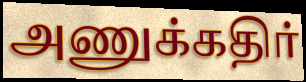
அணுக்கதிர்